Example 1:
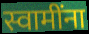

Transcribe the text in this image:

स्वामींना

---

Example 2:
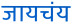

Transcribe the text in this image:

जायचंय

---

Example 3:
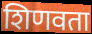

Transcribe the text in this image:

शिणवता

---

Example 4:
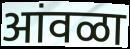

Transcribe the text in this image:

आंवळा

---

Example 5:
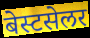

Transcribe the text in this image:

बेस्टसेलर